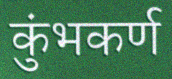
कुंभकर्ण